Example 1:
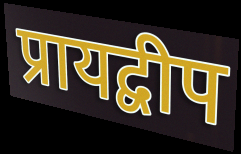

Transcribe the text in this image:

प्रायद्वीप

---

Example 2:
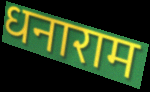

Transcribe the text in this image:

धनाराम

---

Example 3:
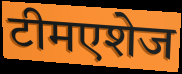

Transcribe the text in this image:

टीमएशेज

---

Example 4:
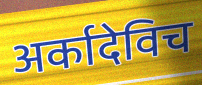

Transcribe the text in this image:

अर्कादेविच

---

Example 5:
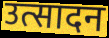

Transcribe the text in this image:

उत्सादन